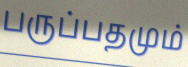
பருப்பதமும்